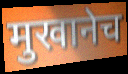
मुखानेच